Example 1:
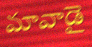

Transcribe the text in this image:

మావాడై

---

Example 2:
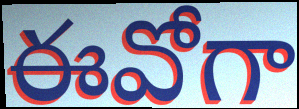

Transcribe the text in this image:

ఈవోగా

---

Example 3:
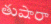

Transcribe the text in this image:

తుషారా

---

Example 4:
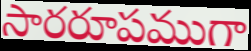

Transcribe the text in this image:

సారరూపముగా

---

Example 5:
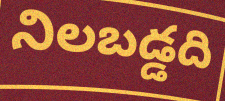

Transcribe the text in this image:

నిలబడ్డది